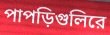
পাপড়িগুলিরে